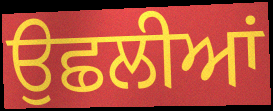
ਉਛਲੀਆਂ